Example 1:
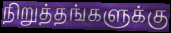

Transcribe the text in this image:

நிறுத்தங்களுக்கு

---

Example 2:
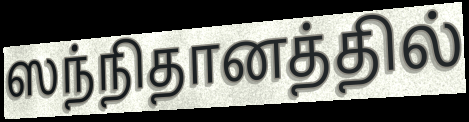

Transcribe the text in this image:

ஸந்நிதானத்தில்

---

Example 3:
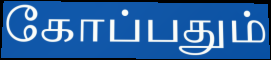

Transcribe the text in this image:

கோப்பதும்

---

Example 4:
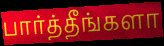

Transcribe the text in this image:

பார்த்தீங்களா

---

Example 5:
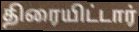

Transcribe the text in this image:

திரையிட்டார்